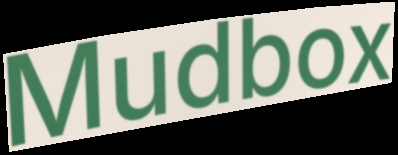
Mudbox